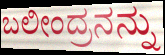
ಬಲೀಂದ್ರನನ್ನು